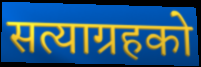
सत्याग्रहको